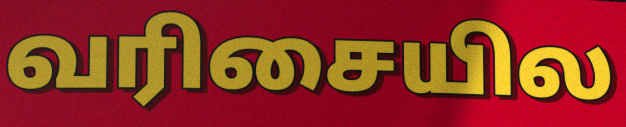
வரிசையில